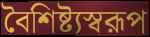
বৈশিষ্ট্যস্বরূপ